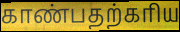
காண்பதற்கரிய